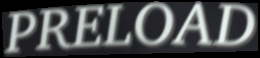
PRELOAD